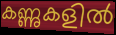
കണ്ണുകളിൽ